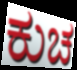
ಕುಚ